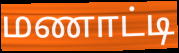
மணாட்டி